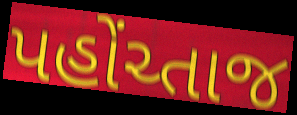
પહોંચ્તાજ